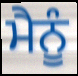
ਮੈਨੂੰ